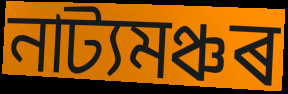
নাট্যমঞ্চৰ